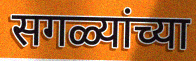
सगळ्यांच्या